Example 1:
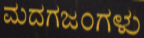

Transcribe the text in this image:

ಮದಗಜಂಗಳು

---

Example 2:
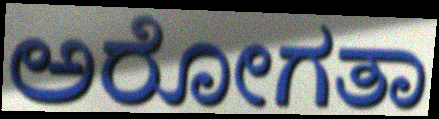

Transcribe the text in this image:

ಅರೋಗತಾ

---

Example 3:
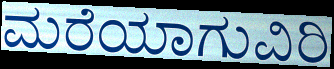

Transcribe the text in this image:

ಮರೆಯಾಗುವಿರಿ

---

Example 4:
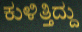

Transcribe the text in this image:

ಕುಳಿತ್ತಿದ್ದು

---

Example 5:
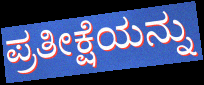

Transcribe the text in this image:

ಪ್ರತೀಕ್ಷೆಯನ್ನು